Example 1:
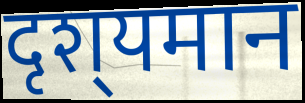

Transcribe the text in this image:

दृश्यमान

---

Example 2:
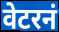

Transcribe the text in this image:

वेटरनं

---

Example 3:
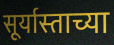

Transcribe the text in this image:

सूर्यास्ताच्या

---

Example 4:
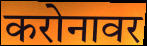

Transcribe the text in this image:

करोनावर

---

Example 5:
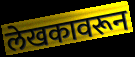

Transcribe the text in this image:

लेखकावरून